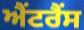
ਐਂਟਰੈਂਸ